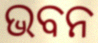
ଭବନ